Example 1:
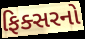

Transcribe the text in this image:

ફિક્સરનો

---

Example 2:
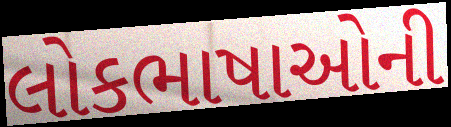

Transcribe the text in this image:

લોકભાષાઓની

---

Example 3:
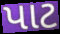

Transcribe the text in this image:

પાટ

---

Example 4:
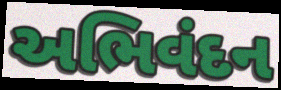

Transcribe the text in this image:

અભિવંદન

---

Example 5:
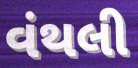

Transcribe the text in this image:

વંથલી